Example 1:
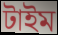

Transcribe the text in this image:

টাইম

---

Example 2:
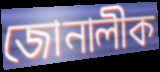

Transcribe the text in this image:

জোনালীক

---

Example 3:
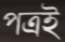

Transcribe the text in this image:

পত্ৰই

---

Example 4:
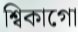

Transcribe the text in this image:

শ্বিকাগো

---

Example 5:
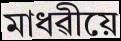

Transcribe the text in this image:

মাধৱীয়ে